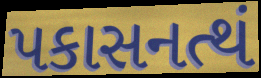
પકાસનત્થં